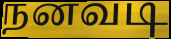
நனவடி